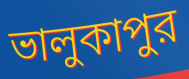
ভালুকাপুর